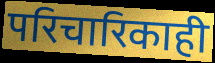
परिचारिकाही